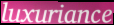
luxuriance